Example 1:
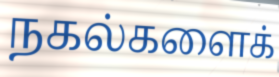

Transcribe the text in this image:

நகல்களைக்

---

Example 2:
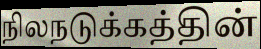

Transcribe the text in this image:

நிலநடுக்கத்தின்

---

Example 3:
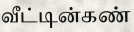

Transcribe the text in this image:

வீட்டின்கண்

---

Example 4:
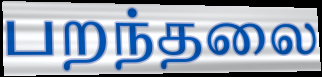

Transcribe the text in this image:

பறந்தலை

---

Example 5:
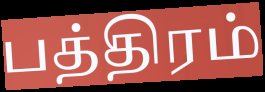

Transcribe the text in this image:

பத்திரம்